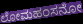
ಲೋಮಹಂಸನೋ